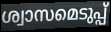
ശ്വാസമെടുപ്പ്